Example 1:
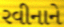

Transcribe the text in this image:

રવીનાને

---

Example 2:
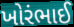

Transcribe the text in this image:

ખોરંભાઈ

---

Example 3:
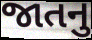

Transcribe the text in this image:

જાતનુ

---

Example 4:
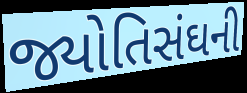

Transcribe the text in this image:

જ્યોતિસંઘની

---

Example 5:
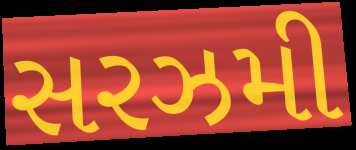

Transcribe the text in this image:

સરઝમી